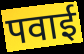
पवाई